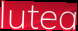
lutea